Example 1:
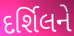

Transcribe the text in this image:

દર્શિલને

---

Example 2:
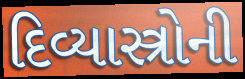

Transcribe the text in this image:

દિવ્યાસ્ત્રોની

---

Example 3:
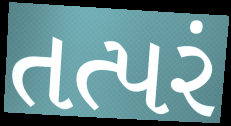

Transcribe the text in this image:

તત્પરં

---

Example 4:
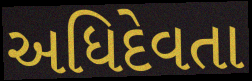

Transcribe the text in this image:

અધિદેવતા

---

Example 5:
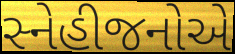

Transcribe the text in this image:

સ્નેહીજનોએ